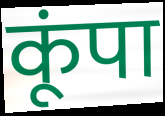
कूंपा